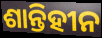
ଶାନ୍ତିହୀନ